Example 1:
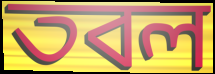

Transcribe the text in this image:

তবল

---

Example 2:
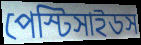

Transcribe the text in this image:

পেস্টিসাইডস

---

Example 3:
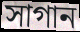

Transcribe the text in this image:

সাগান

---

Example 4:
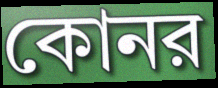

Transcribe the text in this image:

কোনর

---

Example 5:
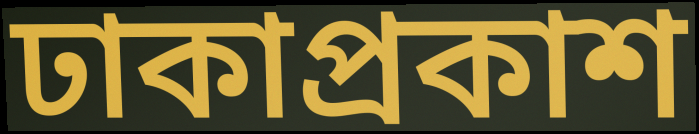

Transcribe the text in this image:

ঢাকাপ্রকাশ